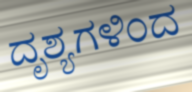
ದೃಶ್ಯಗಳಿಂದ